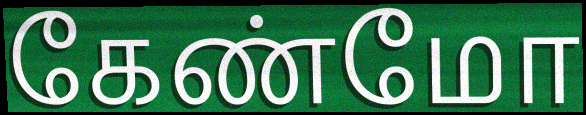
கேண்மோ